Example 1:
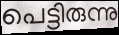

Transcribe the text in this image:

പെട്ടിരുന്നു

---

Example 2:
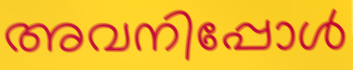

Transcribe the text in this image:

അവനിപ്പോൾ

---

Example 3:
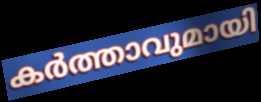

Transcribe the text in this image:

കർത്താവുമായി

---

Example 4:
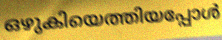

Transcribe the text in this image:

ഒഴുകിയെത്തിയപ്പോൾ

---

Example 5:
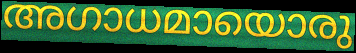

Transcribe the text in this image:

അഗാധമായൊരു